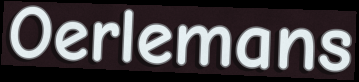
Oerlemans